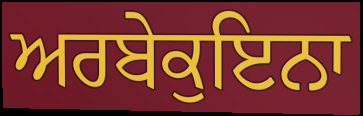
ਅਰਬੇਕੁਇਨਾ